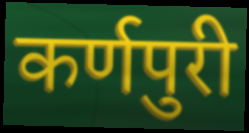
कर्णपुरी